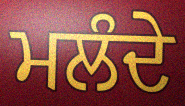
ਮਲੰਦੇ